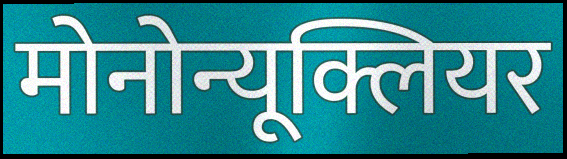
मोनोन्यूक्लियर